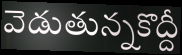
వెడుతున్నకొద్దీ